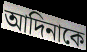
আদিনাকে